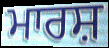
ਮਾਰਸ਼